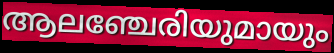
ആലഞ്ചേരിയുമായും